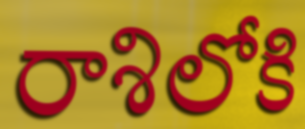
రాశిలోకి